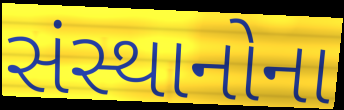
સંસ્થાનોના